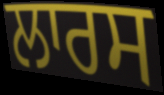
ਲਾਰਸ